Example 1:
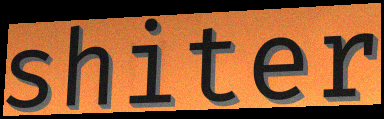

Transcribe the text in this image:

shiter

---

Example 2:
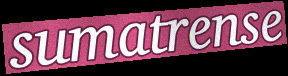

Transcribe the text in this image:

sumatrense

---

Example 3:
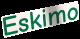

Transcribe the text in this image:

Eskimo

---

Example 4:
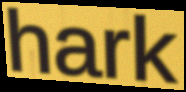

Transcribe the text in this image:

hark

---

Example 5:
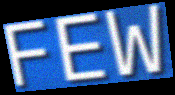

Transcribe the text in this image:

FEW